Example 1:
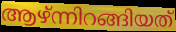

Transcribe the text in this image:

ആഴ്ന്നിറങ്ങിയത്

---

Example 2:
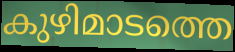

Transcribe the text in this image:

കുഴിമാടത്തെ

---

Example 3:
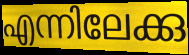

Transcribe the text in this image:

എന്നിലേക്കു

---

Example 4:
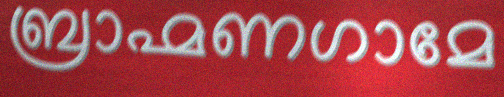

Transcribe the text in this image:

ബ്രാഹ്മണഗാമേ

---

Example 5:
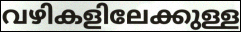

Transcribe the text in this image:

വഴികളിലേക്കുള്ള